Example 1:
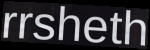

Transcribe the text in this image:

rrsheth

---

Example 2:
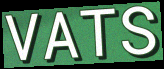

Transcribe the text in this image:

VATS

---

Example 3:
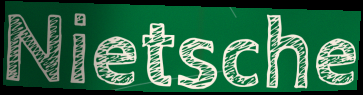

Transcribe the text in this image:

Nietsche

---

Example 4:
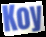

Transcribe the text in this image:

Koy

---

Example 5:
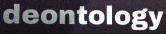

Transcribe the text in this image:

deontology